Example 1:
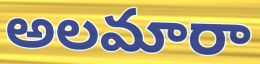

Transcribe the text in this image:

అలమారా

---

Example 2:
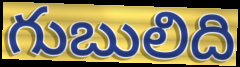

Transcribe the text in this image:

గుబులిది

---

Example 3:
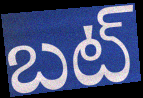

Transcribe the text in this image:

బట్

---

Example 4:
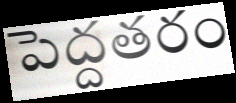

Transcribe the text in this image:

పెద్దతరం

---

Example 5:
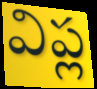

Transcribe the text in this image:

విప్ల